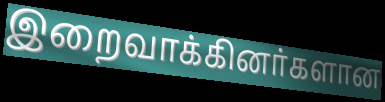
இறைவாக்கினர்களான